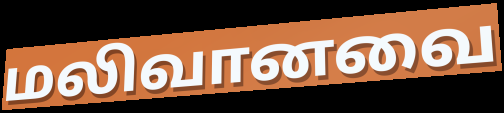
மலிவானவை